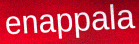
enappala